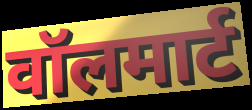
वॉलमार्ट